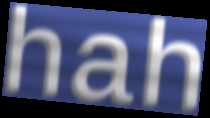
hah